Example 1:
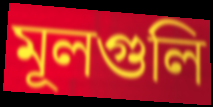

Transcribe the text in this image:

মূলগুলি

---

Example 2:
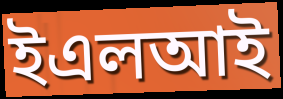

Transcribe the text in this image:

ইএলআই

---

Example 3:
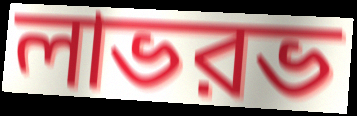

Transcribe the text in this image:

লাভরভ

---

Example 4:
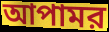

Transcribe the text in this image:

আপামর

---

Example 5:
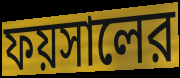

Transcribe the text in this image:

ফয়সালের